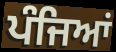
ਪੰਜਿਆਂ